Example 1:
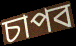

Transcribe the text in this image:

চাপব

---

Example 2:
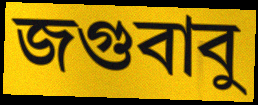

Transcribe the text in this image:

জগুবাবু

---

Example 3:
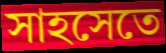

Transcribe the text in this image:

সাহসেতে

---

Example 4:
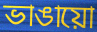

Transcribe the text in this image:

ভাঙায়ো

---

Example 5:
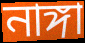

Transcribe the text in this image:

নাঙ্গা